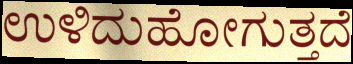
ಉಳಿದುಹೋಗುತ್ತದೆ